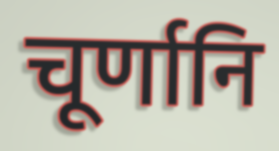
चूर्णानि